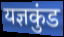
यज्ञकुंड